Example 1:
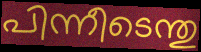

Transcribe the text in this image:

പിന്നീടെന്തു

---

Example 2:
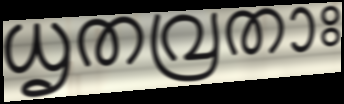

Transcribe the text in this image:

ധൃതവ്രതാഃ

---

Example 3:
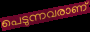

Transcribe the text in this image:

പെടുന്നവരാണ്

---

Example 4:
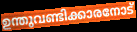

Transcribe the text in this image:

ഉന്തുവണ്ടിക്കാരനോട്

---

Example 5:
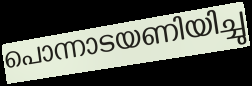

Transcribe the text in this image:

പൊന്നാടയണിയിച്ചു